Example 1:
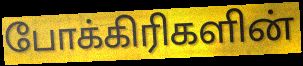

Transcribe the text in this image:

போக்கிரிகளின்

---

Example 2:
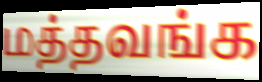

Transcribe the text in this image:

மத்தவங்க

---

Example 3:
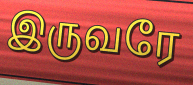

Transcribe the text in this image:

இருவரே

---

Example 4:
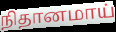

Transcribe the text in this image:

நிதானமாய்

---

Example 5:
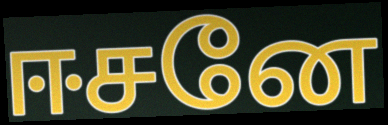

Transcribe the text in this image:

ஈசனே